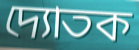
দ্যোতক